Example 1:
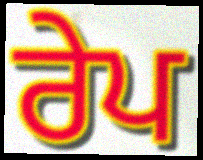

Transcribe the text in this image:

ਰੇਪ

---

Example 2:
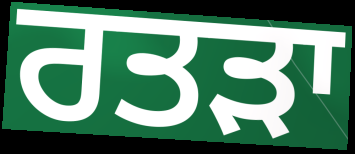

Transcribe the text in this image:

ਰਤੜਾ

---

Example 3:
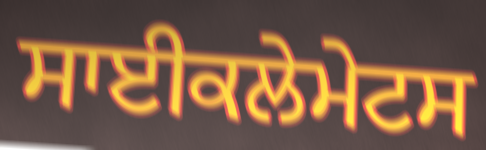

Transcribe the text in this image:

ਸਾਈਕਲੇਮੇਟਸ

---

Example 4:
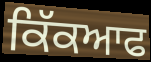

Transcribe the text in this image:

ਕਿੱਕਆਫ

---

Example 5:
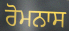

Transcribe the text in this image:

ਰੋਮਨਾਸ